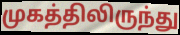
முகத்திலிருந்து